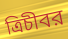
ত্রিচীবর